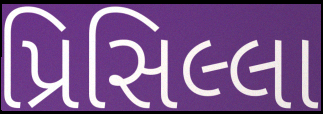
પ્રિસિલ્લા